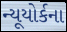
ન્યૂયોર્કના